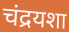
चंद्रयशा